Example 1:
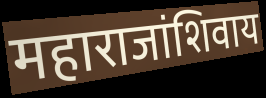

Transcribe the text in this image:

महाराजांशिवाय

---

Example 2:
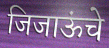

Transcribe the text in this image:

जिजाऊंचे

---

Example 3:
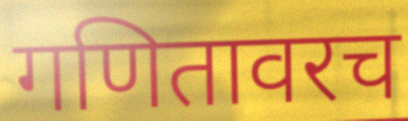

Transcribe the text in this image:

गणितावरच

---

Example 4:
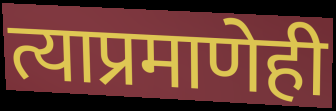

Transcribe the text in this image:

त्याप्रमाणेही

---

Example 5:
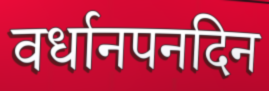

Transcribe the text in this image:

वर्धानपनदिन